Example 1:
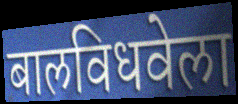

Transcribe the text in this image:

बालविधवेला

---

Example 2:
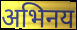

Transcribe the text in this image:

अभिनय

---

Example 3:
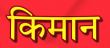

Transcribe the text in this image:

किमान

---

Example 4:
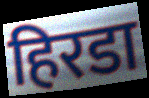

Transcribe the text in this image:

हिरडा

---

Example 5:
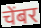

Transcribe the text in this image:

चेंबर